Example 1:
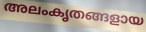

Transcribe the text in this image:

അലംകൃതങ്ങളായ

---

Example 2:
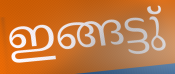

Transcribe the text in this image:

ഇങ്ങട്ടു്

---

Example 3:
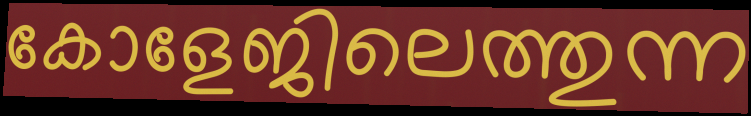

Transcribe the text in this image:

കോളേജിലെത്തുന്ന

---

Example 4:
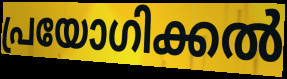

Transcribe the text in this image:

പ്രയോഗിക്കൽ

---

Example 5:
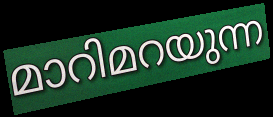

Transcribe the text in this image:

മാറിമറയുന്ന